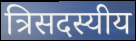
त्रिसदस्यीय